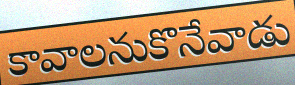
కావాలనుకొనేవాడు